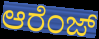
ಆರೆಂಜ್